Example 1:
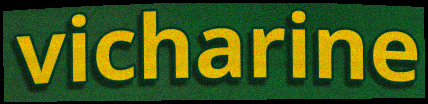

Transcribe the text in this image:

vicharine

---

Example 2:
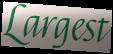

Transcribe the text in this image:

Largest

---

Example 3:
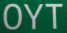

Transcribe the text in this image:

OYT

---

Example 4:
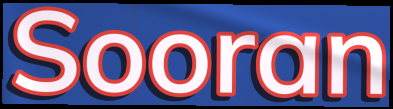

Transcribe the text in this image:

Sooran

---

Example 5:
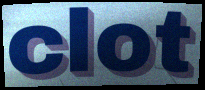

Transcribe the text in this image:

clot